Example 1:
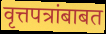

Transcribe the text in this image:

वृत्तपत्रांबाबत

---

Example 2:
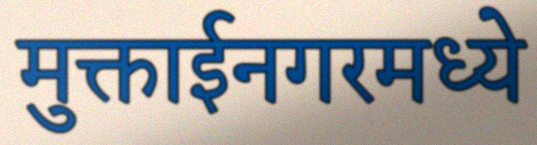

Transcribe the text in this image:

मुक्ताईनगरमध्ये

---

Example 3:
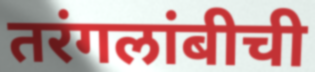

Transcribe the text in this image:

तरंगलांबीची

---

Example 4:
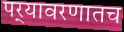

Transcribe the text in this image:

पर्यावरणातच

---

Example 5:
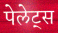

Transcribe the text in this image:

पेलेट्स